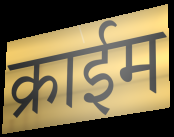
क्राईम